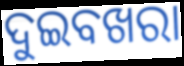
ଦୁଇବଖରା